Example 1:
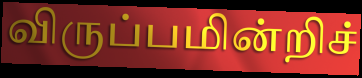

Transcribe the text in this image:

விருப்பமின்றிச்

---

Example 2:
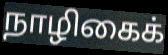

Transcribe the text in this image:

நாழிகைக்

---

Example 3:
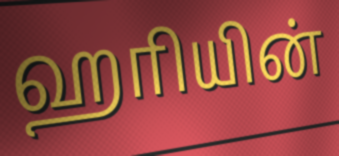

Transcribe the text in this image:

ஹரியின்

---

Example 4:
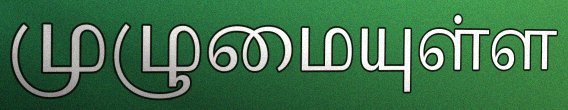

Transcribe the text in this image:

முழுமையுள்ள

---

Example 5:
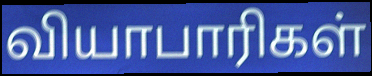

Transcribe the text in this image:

வியாபாரிகள்